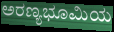
ಅರಣ್ಯಭೂಮಿಯ